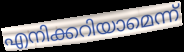
എനിക്കറിയാമെന്ന്